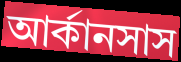
আর্কানসাস